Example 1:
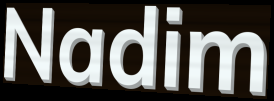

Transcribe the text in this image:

Nadim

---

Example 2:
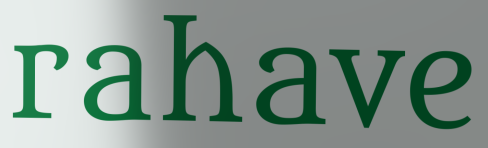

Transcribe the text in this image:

rahave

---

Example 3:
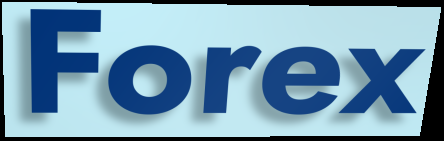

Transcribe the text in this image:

Forex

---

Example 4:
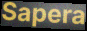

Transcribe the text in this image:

Sapera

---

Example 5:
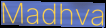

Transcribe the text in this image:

Madhva